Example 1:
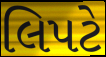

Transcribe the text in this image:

લિપટે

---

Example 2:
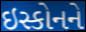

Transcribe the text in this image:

ઇસ્કોનને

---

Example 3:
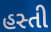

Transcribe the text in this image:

હસ્તી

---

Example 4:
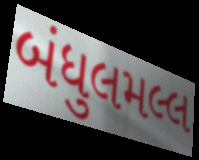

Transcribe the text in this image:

બંધુલમલ્લ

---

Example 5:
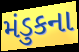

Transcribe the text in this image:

મંડુકના